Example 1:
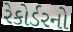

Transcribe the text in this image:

રેકોર્ડરનો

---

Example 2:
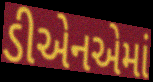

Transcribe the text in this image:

ડીએનએમાં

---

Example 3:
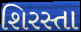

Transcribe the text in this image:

શિરસ્તા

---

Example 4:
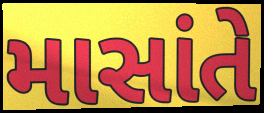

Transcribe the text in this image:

માસાંતે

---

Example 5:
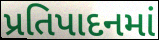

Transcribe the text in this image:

પ્રતિપાદનમાં